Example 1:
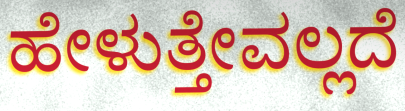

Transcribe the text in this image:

ಹೇಳುತ್ತೇವಲ್ಲದೆ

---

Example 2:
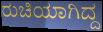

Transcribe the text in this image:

ರುಚಿಯಾಗಿದ್ದ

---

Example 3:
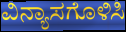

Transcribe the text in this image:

ವಿನ್ಯಾಸಗೊಳಿಸಿ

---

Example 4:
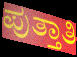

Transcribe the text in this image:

ಪುತ್ತಾತಿ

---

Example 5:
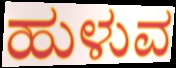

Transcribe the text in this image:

ಹುಳುವ